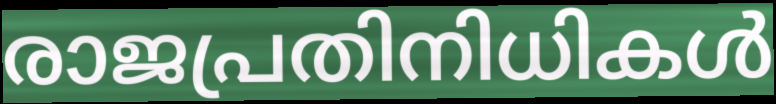
രാജപ്രതിനിധികൾ